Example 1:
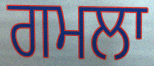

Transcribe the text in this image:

ਗਮਲਾ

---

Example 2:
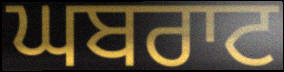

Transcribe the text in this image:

ਘਬਰਾਟ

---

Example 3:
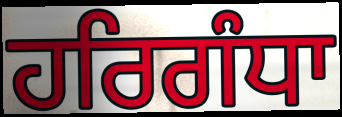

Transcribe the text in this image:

ਹਰਿਗੰਧਾ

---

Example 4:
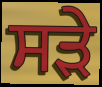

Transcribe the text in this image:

ਸੜੇ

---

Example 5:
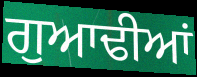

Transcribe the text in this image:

ਗੁਆਢੀਆਂ